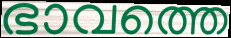
ഭാവത്തെ